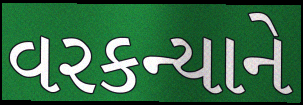
વરકન્યાને